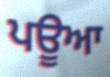
ਪਊਆ